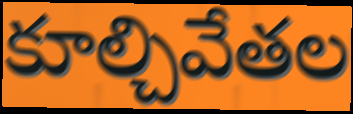
కూల్చివేతల